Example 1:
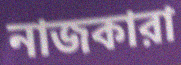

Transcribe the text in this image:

নাজকারা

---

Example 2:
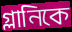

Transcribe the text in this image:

গ্লানিকে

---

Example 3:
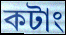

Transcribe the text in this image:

কটাং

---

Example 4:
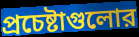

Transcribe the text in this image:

প্রচেষ্টাগুলোর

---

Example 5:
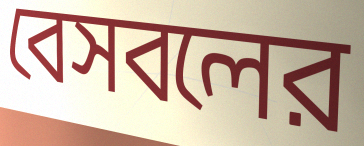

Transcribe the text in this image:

বেসবলের